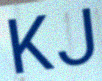
KJ